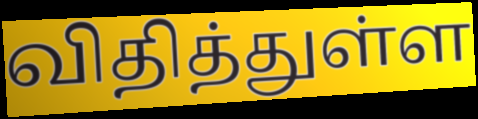
விதித்துள்ள